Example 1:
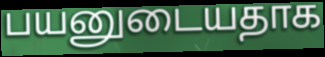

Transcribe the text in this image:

பயனுடையதாக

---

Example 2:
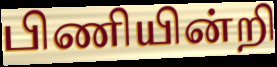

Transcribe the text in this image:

பிணியின்றி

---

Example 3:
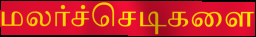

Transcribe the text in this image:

மலர்ச்செடிகளை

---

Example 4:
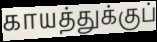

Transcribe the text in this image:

காயத்துக்குப்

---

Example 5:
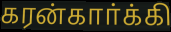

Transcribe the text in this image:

கரன்கார்க்கி